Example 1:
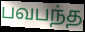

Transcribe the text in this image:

பவபந்த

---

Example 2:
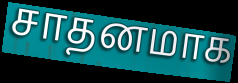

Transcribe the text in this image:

சாதனமாக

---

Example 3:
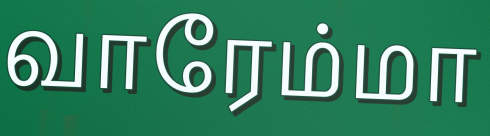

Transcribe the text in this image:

வாரேம்மா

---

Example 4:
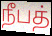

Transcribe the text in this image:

நீபத்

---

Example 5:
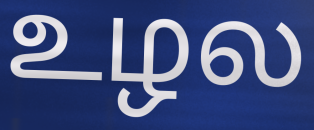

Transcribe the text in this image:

உழல